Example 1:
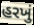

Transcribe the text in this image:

હરખું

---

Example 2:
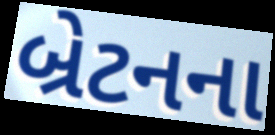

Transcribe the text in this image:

બ્રેટનના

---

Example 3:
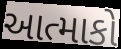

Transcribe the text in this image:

આત્માકો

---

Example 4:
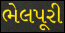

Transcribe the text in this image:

ભેલપૂરી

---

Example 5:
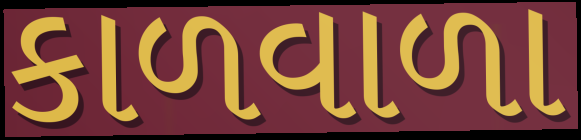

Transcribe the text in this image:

કાળવાળા